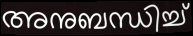
അനുബന്ധിച്ച്